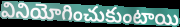
వినియోగించుకుంటాయి